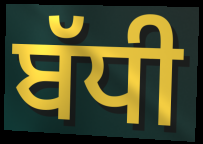
ਬੱਧੀ